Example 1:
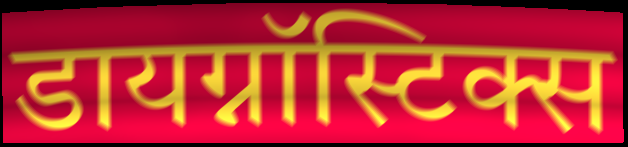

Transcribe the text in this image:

डायग्नॉस्टिक्स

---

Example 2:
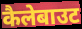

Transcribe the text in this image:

कैलेबाउट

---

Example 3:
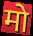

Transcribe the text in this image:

मो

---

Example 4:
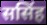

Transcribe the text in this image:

ससिंह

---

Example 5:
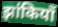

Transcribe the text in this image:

झांकियाँ